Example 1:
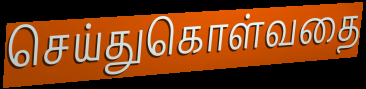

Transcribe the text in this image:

செய்துகொள்வதை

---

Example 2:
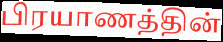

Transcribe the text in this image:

பிரயாணத்தின்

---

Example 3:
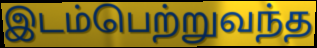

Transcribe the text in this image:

இடம்பெற்றுவந்த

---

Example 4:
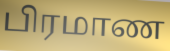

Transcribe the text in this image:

பிரமாண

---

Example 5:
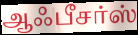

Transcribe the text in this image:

ஆஃபீசர்ஸ்